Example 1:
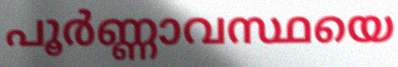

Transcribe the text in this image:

പൂർണ്ണാവസ്ഥയെ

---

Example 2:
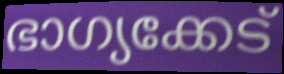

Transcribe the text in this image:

ഭാഗ്യക്കേട്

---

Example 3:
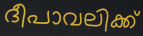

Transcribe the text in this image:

ദീപാവലിക്ക്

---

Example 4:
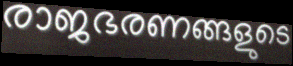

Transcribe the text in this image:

രാജഭരണങ്ങളുടെ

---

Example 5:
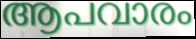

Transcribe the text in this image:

ആപവാരം